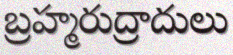
బ్రహ్మరుద్రాదులు